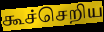
கூச்செறிய